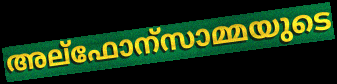
അല്ഫോന്സാമ്മയുടെ